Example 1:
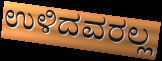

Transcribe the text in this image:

ಉಳಿದವರಲ್ಲ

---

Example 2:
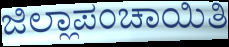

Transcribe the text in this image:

ಜಿಲ್ಲಾಪಂಚಾಯಿತಿ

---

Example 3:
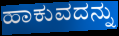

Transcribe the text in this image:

ಹಾಕುವದನ್ನು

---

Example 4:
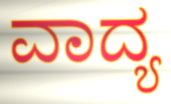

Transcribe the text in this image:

ವಾದ್ಯ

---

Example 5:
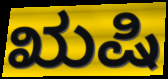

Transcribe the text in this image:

ಋಷಿ